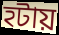
হটায়